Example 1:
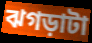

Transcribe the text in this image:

ঝগড়াটা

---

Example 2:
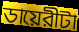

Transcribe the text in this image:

ডায়েরীটা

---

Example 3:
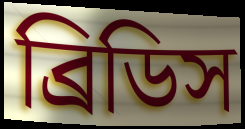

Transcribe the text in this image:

ব্রিডিস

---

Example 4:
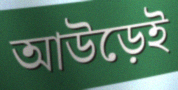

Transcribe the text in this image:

আউড়েই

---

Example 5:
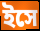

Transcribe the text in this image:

ইসে